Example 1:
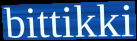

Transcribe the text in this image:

bittikki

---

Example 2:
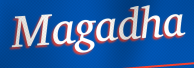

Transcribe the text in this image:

Magadha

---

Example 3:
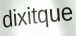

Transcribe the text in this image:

dixitque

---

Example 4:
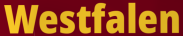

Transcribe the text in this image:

Westfalen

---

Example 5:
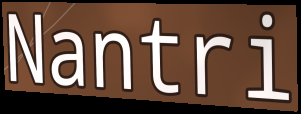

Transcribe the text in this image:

Nantri